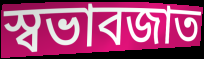
স্বভাবজাত